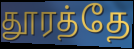
தூரத்தே